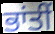
ਭਾਂਤੀਂ